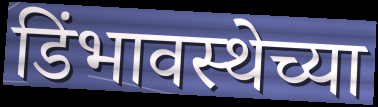
डिंभावस्थेच्या